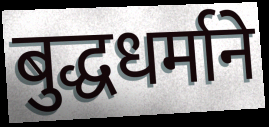
बुद्धधर्माने